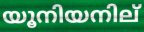
യൂനിയനില്